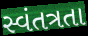
સ્વંતત્રતા